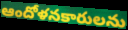
ఆందోళనకారులను